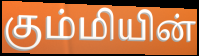
கும்மியின்